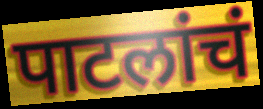
पाटलांचं